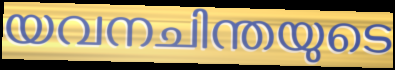
യവനചിന്തയുടെ